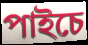
পাইচে